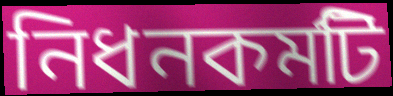
নিধনকর্মটি